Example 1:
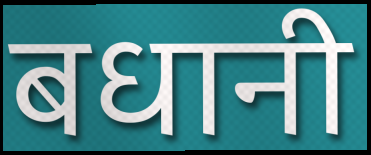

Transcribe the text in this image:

बधानी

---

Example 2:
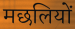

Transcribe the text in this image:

मछलियों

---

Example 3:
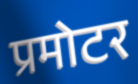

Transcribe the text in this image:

प्रमोटर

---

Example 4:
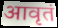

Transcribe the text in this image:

आवृतं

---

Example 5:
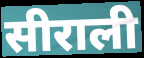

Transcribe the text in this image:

सीराली